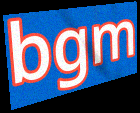
bgm